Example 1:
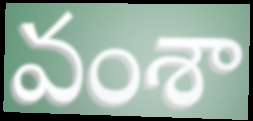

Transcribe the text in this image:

వంశా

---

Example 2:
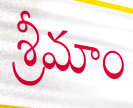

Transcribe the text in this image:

శ్రీమాం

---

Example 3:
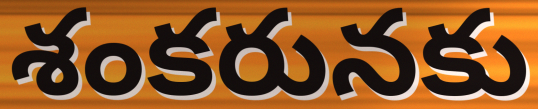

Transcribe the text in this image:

శంకరునకు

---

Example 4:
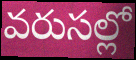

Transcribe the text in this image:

వరుసల్లో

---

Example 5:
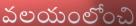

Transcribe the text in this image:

వలయంలోంచి